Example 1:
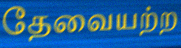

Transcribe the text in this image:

தேவையற்ற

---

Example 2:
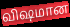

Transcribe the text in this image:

விஷமான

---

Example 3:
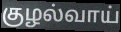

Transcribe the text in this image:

குழல்வாய்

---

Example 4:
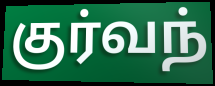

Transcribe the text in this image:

குர்வந்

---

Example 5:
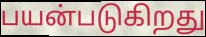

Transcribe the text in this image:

பயன்படுகிறது